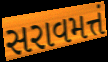
સરાવમત્તં